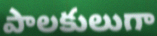
పాలకులుగా